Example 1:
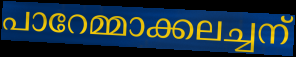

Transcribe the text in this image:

പാറേമ്മാക്കലച്ചന്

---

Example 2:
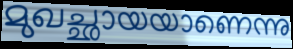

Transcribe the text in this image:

മുഖച്ഛായയാണെന്നു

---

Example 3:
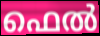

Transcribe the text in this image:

ഫെൽ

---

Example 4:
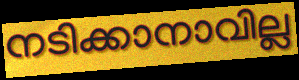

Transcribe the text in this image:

നടിക്കാനാവില്ല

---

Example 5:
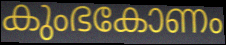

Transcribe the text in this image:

കുംഭകോണം